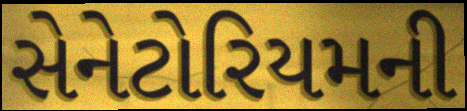
સેનેટોરિયમની